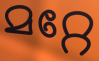
മറ്റേ